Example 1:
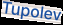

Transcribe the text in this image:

Tupolev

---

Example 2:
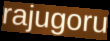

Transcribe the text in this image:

rajugoru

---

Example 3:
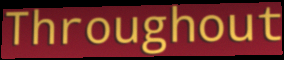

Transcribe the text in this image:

Throughout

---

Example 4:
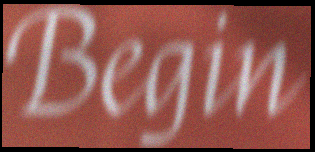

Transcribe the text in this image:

Begin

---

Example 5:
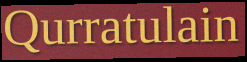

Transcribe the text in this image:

Qurratulain